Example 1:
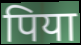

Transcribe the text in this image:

पिया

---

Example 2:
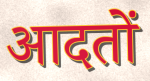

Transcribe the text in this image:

आदतों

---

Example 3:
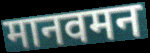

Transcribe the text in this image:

मानवमन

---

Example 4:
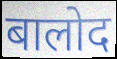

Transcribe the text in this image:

बालोद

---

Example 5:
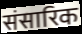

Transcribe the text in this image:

संसारिक